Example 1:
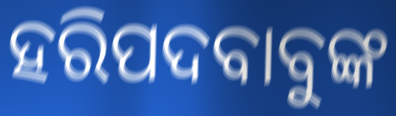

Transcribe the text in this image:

ହରିପଦବାବୁଙ୍କ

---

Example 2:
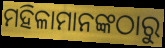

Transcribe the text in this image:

ମହିଳାମାନଙ୍କଠାରୁ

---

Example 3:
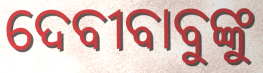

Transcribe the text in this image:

ଦେବୀବାବୁଙ୍କୁ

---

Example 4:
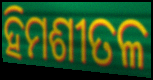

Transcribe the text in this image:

ହିମଶୀତଳ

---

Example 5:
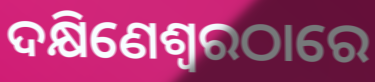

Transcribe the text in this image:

ଦକ୍ଷିଣେଶ୍ୱରଠାରେ